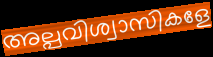
അല്പവിശ്വാസികളേ